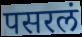
पसरलं